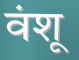
वंशू